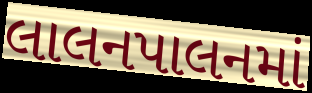
લાલનપાલનમાં